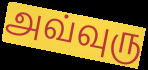
அவ்வுரு